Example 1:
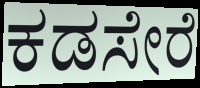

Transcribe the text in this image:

ಕಡಸೇರೆ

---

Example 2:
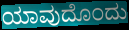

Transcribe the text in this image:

ಯಾವುದೊಂದು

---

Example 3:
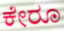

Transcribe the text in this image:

ಕೇರೂ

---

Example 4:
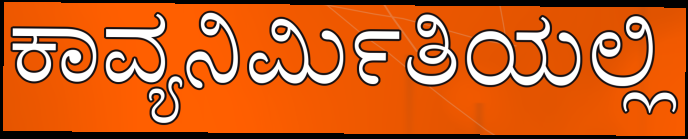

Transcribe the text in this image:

ಕಾವ್ಯನಿರ್ಮಿತಿಯಲ್ಲಿ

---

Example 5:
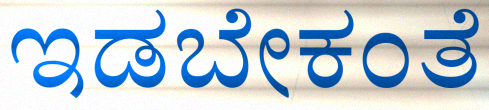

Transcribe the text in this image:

ಇಡಬೇಕಂತೆ